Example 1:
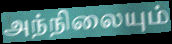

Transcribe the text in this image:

அந்நிலையும்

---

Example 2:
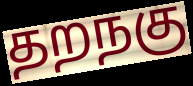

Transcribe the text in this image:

தறநகு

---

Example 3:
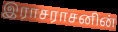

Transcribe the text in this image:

இராசராசனின்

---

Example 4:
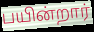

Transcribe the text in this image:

பயின்றார்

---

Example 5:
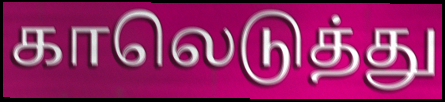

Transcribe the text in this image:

காலெடுத்து